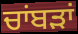
ਚਾਂਬੜਾਂ